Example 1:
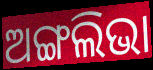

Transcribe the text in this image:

ଅଙ୍ଗଲିଭା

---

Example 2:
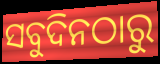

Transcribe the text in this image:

ସବୁଦିନଠାରୁ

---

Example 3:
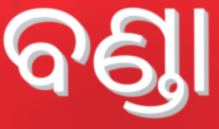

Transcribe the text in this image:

ବଣ୍ଡା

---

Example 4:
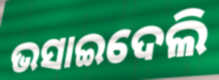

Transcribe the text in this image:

ଭସାଇଦେଲି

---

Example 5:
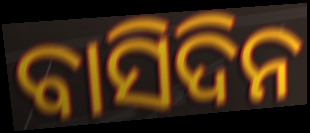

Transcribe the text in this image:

ବାସିଦିନ